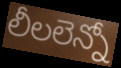
లీలలెన్నో